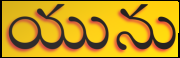
యును